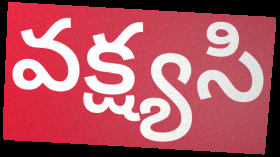
వక్ష్యసి